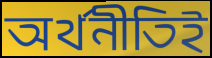
অর্থনীতিই